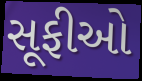
સૂફીઓ